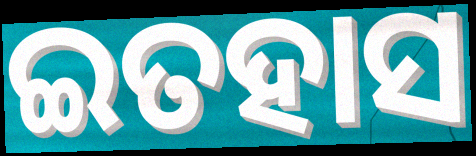
ଇତହାସ